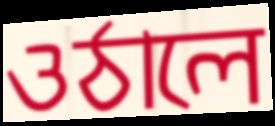
ওঠালে